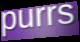
purrs